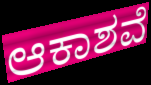
ಆಕಾಶವೆ